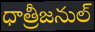
ధాత్రీజనుల్